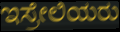
ಇಸ್ರೇಲಿಯರು